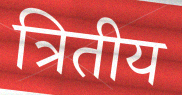
त्रितीय